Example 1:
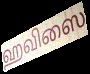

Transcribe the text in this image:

ஹவிஸை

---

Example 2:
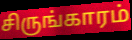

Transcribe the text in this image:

சிருங்காரம்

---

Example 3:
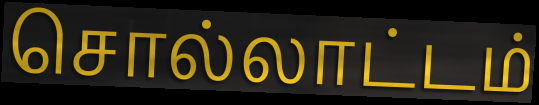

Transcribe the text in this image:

சொல்லாட்டம்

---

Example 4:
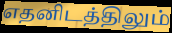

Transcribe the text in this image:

எதனிடத்திலும்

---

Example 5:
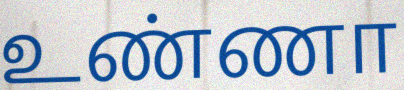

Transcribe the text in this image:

உண்ணா